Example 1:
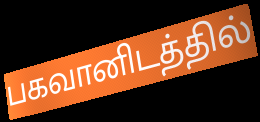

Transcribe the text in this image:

பகவானிடத்தில்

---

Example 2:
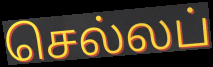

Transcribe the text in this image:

செல்லப்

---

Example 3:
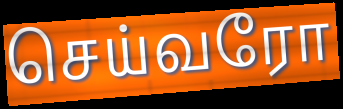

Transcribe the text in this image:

செய்வரோ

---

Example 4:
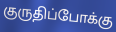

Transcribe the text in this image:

குருதிப்போக்கு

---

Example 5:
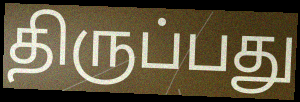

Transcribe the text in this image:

திருப்பது